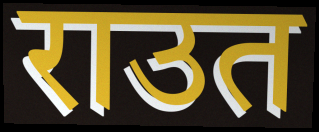
राउत